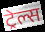
ट्रेल्स